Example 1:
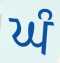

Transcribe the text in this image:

ਘੰ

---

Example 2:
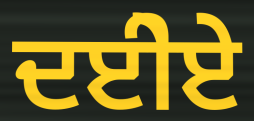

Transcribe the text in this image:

ਦਈੇਏ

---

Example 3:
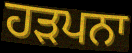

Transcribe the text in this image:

ਹੜਪਨਾ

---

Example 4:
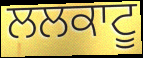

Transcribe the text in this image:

ਲਲਕਾਟੂ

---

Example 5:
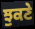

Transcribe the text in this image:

ਝੁਕਣੇ